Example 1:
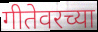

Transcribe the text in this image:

गीतेवरच्या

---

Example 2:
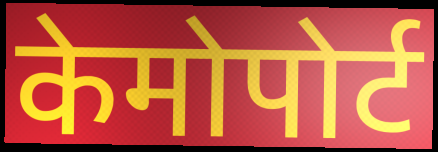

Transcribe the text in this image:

केमोपोर्ट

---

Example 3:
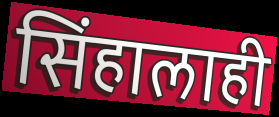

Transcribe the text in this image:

सिंहालाही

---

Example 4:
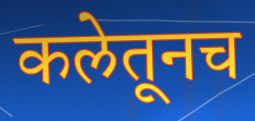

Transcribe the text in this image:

कलेतूनच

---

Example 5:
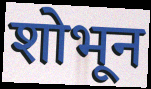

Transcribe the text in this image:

शोभून